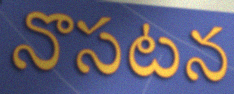
నొసటన